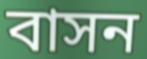
বাসন